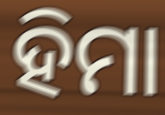
ହିମା